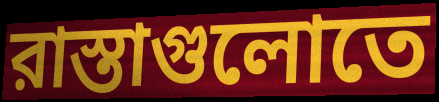
রাস্তাগুলোতে